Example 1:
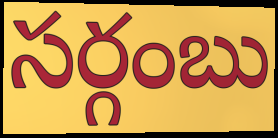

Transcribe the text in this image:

సర్గంబు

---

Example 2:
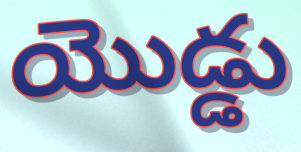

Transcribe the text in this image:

యొడ్డు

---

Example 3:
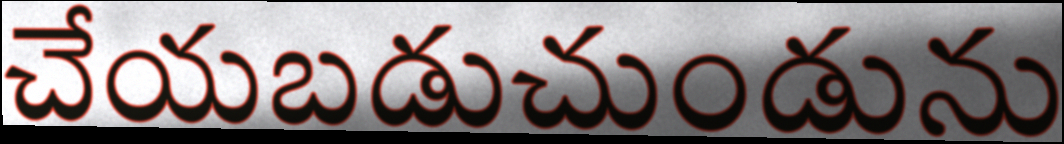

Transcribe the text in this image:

చేయబడుచుండును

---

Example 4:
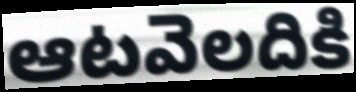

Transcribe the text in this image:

ఆటవెలదికి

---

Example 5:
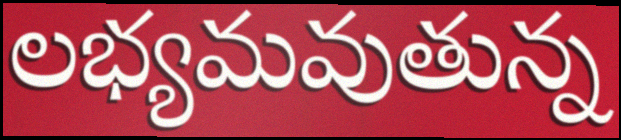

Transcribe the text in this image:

లభ్యమవుతున్న